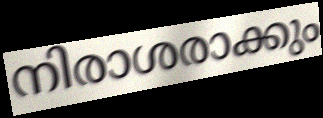
നിരാശരാക്കും